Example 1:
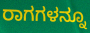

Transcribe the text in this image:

ರಾಗಗಳನ್ನೂ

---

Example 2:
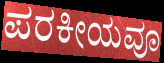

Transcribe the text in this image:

ಪರಕೀಯವೂ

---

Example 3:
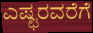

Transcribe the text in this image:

ಎಷ್ಟರವರೆಗೆ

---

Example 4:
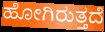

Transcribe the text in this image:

ಹೋಗಿರುತ್ತದೆ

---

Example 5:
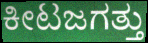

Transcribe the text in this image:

ಕೀಟಜಗತ್ತು